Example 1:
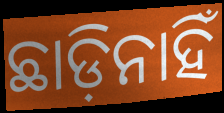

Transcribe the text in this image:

ଛାଡ଼ିନାହିଁ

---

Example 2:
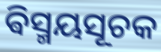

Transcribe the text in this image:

ଵିସ୍ମୟସୂଚକ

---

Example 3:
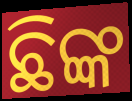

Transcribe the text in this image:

ଛିଙ୍କ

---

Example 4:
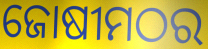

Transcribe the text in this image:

ଜୋଷୀମଠର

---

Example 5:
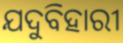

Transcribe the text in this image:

ଯଦୁବିହାରୀ